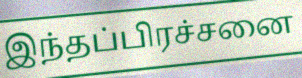
இந்தப்பிரச்சனை